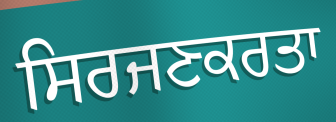
ਸਿਰਜਣਕਰਤਾ